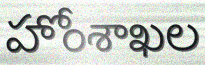
హోంశాఖల